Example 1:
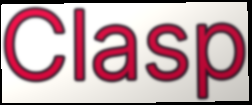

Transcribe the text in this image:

Clasp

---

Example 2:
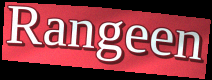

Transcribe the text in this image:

Rangeen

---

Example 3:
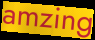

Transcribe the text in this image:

amzing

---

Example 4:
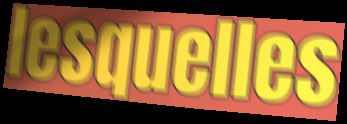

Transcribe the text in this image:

lesquelles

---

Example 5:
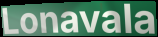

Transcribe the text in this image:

Lonavala